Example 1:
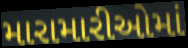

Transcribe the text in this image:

મારામારીઓમાં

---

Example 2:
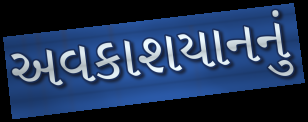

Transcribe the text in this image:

અવકાશયાનનું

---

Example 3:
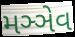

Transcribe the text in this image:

મઞ્ઞેવ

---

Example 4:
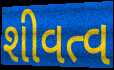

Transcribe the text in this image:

શીવત્વ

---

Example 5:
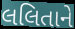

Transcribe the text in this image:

લલિતાને